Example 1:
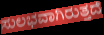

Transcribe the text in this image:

ಸುಲಭವಾಗಿರುತ್ತದೆ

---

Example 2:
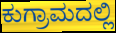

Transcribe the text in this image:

ಕುಗ್ರಾಮದಲ್ಲಿ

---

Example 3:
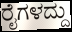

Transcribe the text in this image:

ರೈಗಳದ್ದು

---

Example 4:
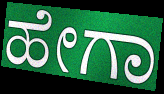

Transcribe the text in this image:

ಹೇಗಾ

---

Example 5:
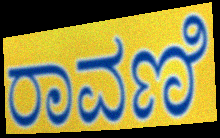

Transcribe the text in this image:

ರಾವಣಿ